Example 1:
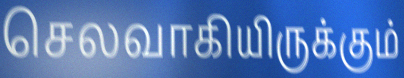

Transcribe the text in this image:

செலவாகியிருக்கும்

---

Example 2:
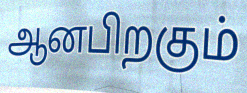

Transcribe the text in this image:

ஆனபிறகும்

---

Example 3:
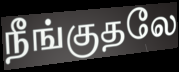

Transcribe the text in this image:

நீங்குதலே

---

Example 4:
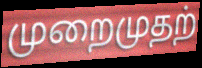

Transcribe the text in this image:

முறைமுதற்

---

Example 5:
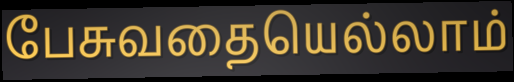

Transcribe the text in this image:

பேசுவதையெல்லாம்